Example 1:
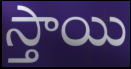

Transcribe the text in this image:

స్తాయి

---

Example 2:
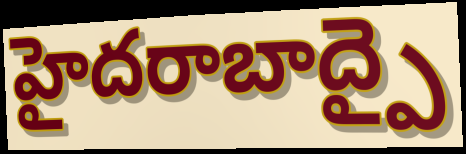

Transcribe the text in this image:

హైదరాబాద్పై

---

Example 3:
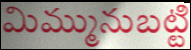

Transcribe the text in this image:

మిమ్మునుబట్టి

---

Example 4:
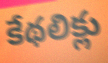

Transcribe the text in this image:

కేథలిక్లు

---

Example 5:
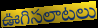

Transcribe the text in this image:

ఊగిసలాటలు